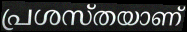
പ്രശസ്തയാണ്